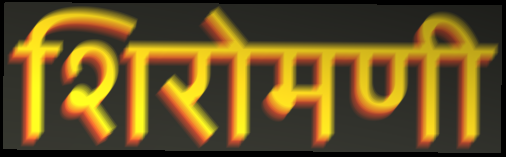
शिरोमणी